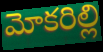
మోకరిల్లి